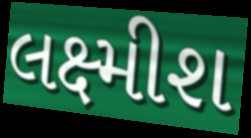
લક્ષ્મીશ